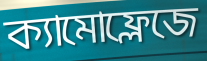
ক্যামোফ্লেজে